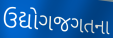
ઉદ્યોગજગતના